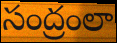
సంద్రంలా